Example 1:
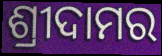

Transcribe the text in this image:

ଶ୍ରୀଦାମର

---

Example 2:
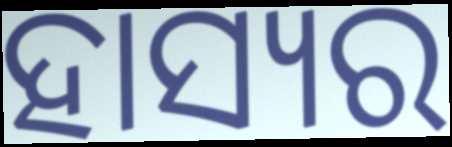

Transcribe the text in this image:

ହାସ୍ୟର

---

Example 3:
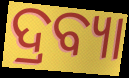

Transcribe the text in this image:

ଦ୍ରବ୍ୟା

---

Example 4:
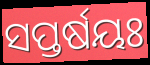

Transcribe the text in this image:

ସପ୍ତର୍ଷୟଃ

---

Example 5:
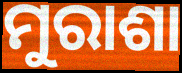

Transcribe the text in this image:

ମୁରାଶା